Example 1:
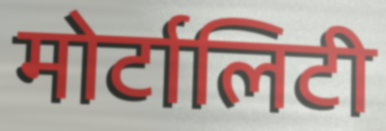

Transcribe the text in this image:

मोर्टालिटी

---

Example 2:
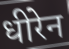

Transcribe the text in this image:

धीरेन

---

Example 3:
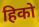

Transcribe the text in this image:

हिको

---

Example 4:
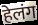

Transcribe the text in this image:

हेलंग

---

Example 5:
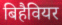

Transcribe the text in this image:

बिहैवियर